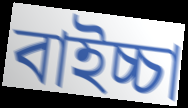
বাইচ্চা